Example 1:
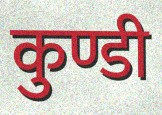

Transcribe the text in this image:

कुण्डी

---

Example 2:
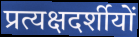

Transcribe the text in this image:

प्रत्यक्षदर्शीयों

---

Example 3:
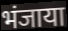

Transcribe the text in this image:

भंजाया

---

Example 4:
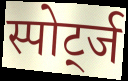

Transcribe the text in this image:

स्पोर्ट्ज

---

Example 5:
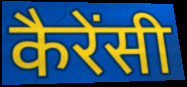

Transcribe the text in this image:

कैरेंसी